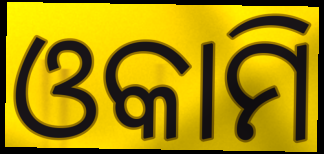
ଓକାମି